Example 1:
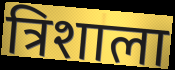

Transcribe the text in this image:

त्रिशाला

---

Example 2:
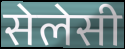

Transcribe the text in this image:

सेलेसी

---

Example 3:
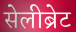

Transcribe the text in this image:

सेलीब्रेट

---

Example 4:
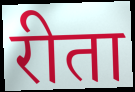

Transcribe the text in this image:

रीता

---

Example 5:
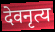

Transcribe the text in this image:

देवनृत्य